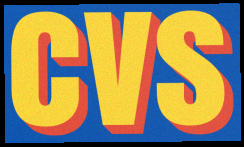
cvs